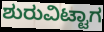
ಶುರುವಿಟ್ಟಾಗ